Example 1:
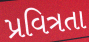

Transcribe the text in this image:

પ્રવિત્રતા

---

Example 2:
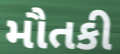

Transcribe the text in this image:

મૌતકી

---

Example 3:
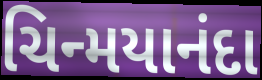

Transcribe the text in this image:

ચિન્મયાનંદા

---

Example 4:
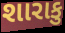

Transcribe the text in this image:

શારાકુ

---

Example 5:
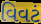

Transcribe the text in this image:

વિવટં